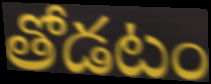
తోడటం